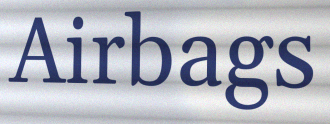
Airbags